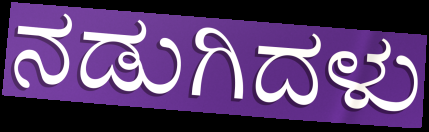
ನಡುಗಿದಳು